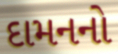
દામનનો